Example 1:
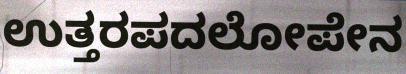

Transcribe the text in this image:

ಉತ್ತರಪದಲೋಪೇನ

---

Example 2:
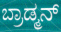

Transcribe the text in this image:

ಬ್ರಾಡ್ಮನ್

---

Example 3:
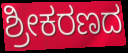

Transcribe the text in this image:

ಶ್ರೀಕರಣದ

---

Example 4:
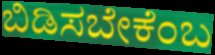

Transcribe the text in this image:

ಬಿಡಿಸಬೇಕೆಂಬ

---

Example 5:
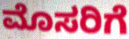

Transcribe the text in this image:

ಮೊಸರಿಗೆ